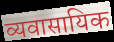
व्यवासायिक